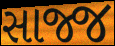
સાજ્જ